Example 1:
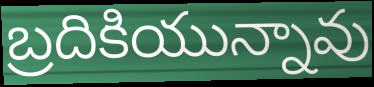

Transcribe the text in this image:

బ్రదికియున్నావు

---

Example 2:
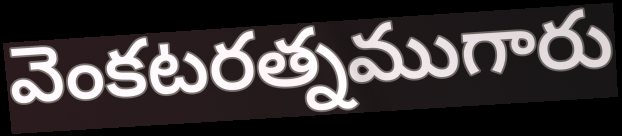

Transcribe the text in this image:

వెంకటరత్నముగారు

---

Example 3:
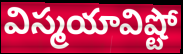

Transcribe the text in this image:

విస్మయావిష్టో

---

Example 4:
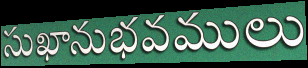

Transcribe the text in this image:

సుఖానుభవములు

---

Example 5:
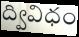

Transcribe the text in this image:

ద్వివిధం